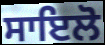
ਸਾਇਲੋ